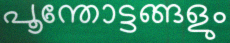
പൂന്തോട്ടങ്ങളും